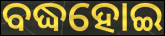
ବଦ୍ଧହୋଇ